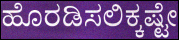
ಹೊರಡಿಸಲಿಕ್ಕಷ್ಟೇ